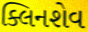
ક્લિનશેવ